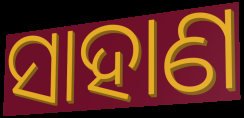
ସାହାଣ